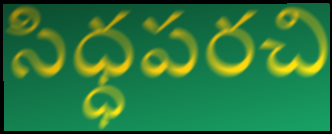
సిధ్ధపరచి